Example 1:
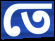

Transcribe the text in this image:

তে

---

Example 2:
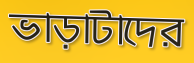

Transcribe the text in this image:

ভাড়াটাদের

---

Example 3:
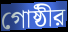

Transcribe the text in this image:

গোষ্ঠীর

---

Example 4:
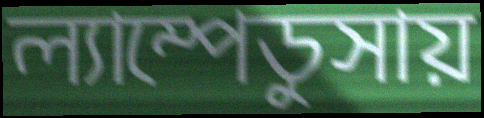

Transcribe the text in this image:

ল্যাম্পেডুসায়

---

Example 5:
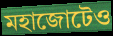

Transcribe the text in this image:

মহাজোটেও